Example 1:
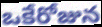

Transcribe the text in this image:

ఒకేరోజున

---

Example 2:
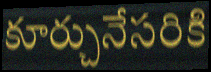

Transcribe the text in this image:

కూర్చునేసరికి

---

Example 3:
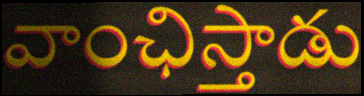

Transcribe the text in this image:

వాంఛిస్తాడు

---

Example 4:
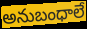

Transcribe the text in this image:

అనుబంధాలే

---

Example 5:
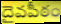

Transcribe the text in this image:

దైవపీఠం